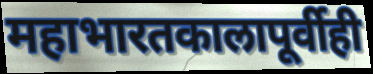
महाभारतकालापूर्वीही